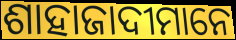
ଶାହାଜାଦୀମାନେ